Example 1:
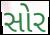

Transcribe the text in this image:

સોર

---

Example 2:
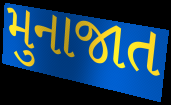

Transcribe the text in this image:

મુનાજાત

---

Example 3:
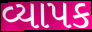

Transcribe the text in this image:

વ્યાપક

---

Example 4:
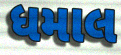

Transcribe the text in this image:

ધમાલ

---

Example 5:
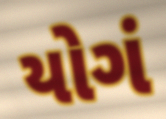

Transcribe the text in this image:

યોગં